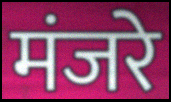
मंजरे